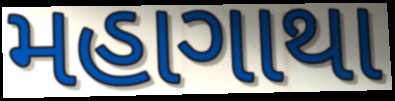
મહાગાથા